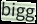
bigg